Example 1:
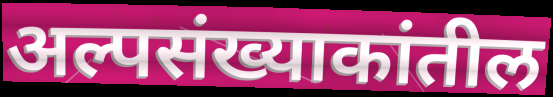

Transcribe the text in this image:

अल्पसंख्याकांतील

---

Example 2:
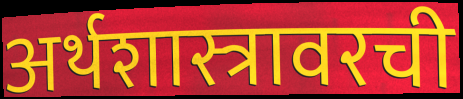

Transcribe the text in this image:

अर्थशास्त्रावरची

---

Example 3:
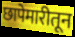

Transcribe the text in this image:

छापेमारीतून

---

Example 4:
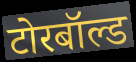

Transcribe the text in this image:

टोरबॉल्ड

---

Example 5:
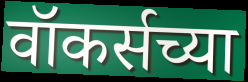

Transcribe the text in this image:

वॉकर्सच्या